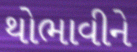
થોભાવીને